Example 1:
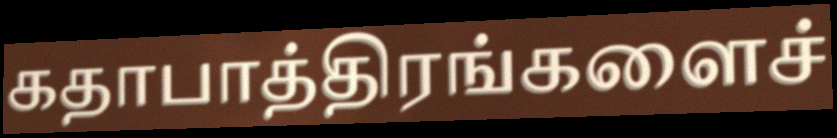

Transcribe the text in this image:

கதாபாத்திரங்களைச்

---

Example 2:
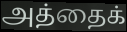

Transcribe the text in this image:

அத்தைக்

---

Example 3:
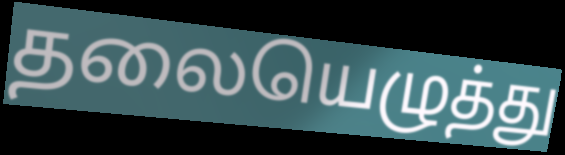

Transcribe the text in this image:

தலையெழுத்து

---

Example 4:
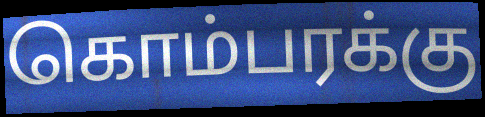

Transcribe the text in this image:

கொம்பரக்கு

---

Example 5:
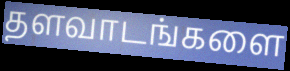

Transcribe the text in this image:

தளவாடங்களை